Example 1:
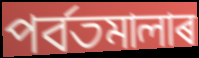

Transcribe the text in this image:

পৰ্বতমালাৰ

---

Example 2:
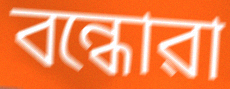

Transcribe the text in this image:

বন্ধোৱা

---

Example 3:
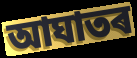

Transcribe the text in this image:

আঘাতৰ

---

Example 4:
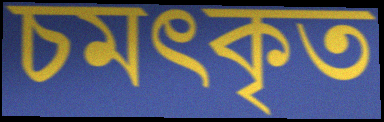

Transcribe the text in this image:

চমৎকৃত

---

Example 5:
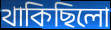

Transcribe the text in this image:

থাকিছিলো